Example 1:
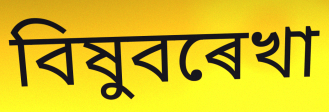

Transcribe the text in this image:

বিষুবৰেখা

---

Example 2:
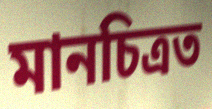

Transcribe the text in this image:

মানচিত্ৰত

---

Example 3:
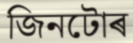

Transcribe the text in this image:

জিনটোৰ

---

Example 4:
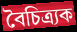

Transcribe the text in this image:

বৈচিত্ৰ্যক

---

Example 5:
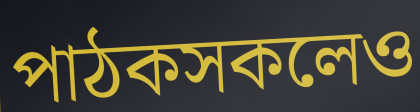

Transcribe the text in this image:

পাঠকসকলেও